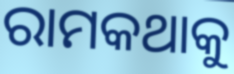
ରାମକଥାକୁ